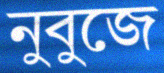
নুবুজে